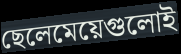
ছেলেমেয়েগুলোই